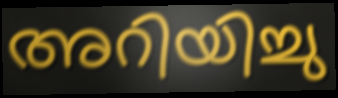
അറിയിച്ചു